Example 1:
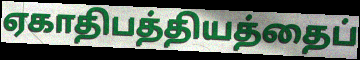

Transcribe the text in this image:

ஏகாதிபத்தியத்தைப்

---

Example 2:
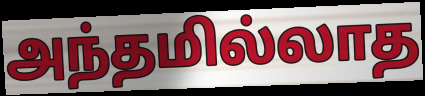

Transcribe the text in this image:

அந்தமில்லாத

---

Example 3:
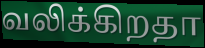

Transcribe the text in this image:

வலிக்கிறதா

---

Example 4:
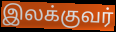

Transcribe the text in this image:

இலக்குவர்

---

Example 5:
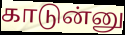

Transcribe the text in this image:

காடுன்னு